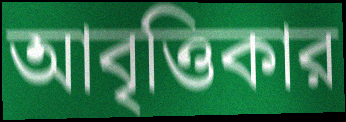
আবৃত্তিকার